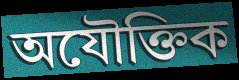
অযৌক্তিক